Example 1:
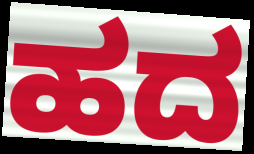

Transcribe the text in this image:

ಹದ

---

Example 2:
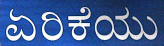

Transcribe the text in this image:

ಏರಿಕೆಯು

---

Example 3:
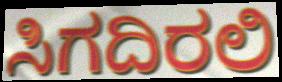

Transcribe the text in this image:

ಸಿಗದಿರಲಿ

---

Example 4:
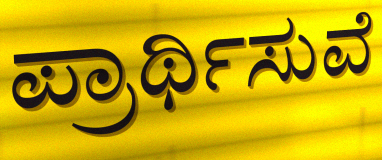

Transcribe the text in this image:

ಪ್ರಾರ್ಥಿಸುವೆ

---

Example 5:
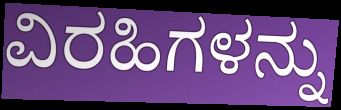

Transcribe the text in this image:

ವಿರಹಿಗಳನ್ನು